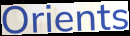
Orients